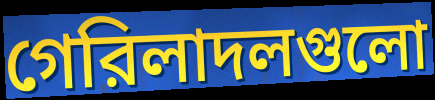
গেরিলাদলগুলো